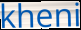
kheni